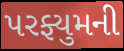
પરફ્યુમની